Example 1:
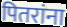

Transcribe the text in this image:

पितरांना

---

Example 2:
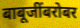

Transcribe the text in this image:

बाबूजींबरोबर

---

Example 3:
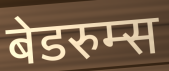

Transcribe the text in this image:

बेडरुम्स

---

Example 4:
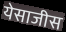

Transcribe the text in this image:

येसाजीस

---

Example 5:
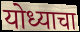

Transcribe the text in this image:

योध्याचा